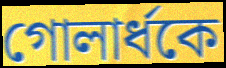
গোলার্ধকে